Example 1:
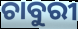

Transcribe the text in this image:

ଚାବୁରୀ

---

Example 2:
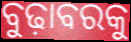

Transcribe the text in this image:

ବୁଢ଼ାବରକୁ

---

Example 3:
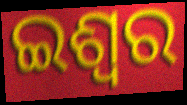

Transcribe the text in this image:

ଇଶ୍ବର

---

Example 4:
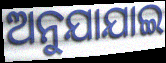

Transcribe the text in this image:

ଅନୁଯାଯାଇ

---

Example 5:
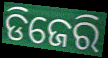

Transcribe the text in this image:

ଡିଜେରି